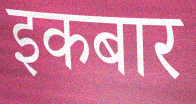
इकबार